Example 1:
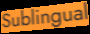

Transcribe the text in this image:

Sublingual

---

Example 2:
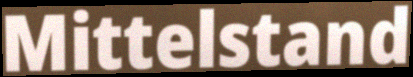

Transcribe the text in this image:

Mittelstand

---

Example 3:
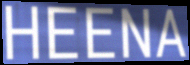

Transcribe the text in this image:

HEENA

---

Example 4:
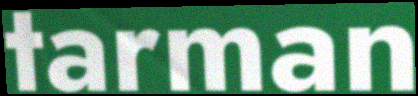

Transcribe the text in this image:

tarman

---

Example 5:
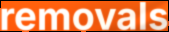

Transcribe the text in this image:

removals